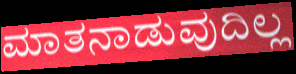
ಮಾತನಾಡುವುದಿಲ್ಲ